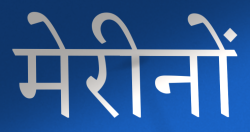
मेरीनों